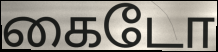
கைடோ